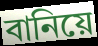
বানিয়ে